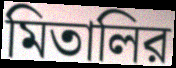
মিতালির